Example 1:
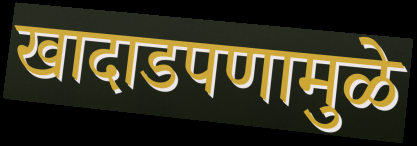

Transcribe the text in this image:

खादाडपणामुळे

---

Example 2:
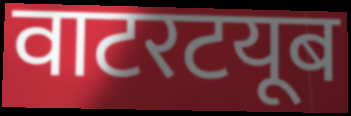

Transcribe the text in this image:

वाटरटयूब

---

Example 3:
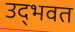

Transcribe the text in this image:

उद्भवत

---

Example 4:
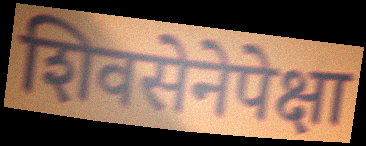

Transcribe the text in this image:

शिवसेनेपेक्षा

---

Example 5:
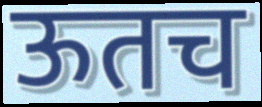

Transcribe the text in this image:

ऊतच